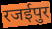
रजईपुर